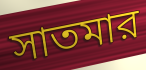
সাতমার